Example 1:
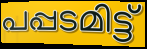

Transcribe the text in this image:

പപ്പടമിട്ട്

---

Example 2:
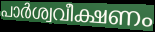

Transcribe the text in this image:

പാർശ്വവീക്ഷണം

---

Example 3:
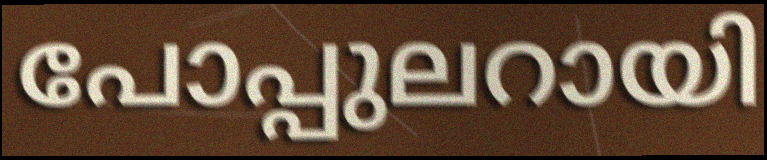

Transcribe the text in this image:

പോപ്പുലറായി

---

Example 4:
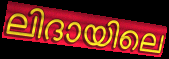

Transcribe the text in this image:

ലിദായിലെ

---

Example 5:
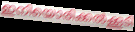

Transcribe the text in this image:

ഇനിയൊരിക്കൽക്കൂടി